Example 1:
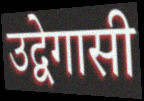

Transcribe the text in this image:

उद्वेगासी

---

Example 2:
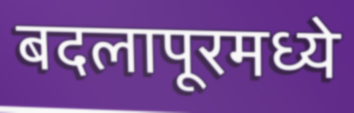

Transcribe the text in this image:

बदलापूरमध्ये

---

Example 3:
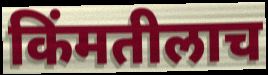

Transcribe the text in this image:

किंमतीलाच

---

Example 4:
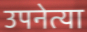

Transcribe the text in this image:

उपनेत्या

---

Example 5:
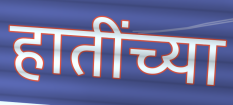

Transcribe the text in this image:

हातींच्या